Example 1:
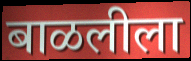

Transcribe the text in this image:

बाळलीला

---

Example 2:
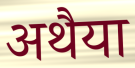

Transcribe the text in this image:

अथैया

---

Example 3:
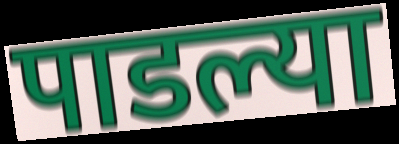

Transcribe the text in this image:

पाडल्या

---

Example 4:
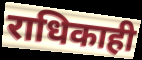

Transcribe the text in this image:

राधिकाही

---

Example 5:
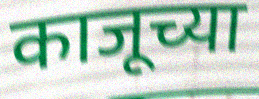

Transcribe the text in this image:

काजूच्या